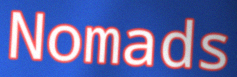
Nomads